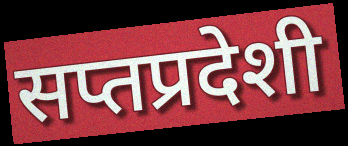
सप्तप्रदेशी